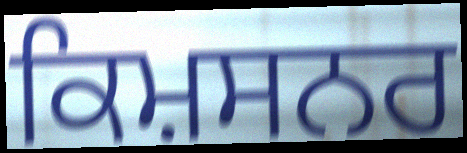
ਕਿਮ਼ਸਨਰ